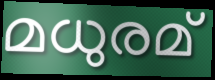
മധുരമ്